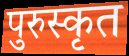
पुरुस्कृत